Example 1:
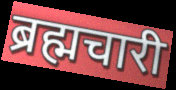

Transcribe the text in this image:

ब्रह्मचारी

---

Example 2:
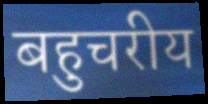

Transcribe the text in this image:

बहुचरीय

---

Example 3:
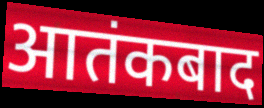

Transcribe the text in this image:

आतंकबाद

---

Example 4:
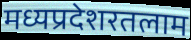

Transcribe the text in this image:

मध्यप्रदेशरतलाम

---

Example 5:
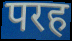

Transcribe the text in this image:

परह